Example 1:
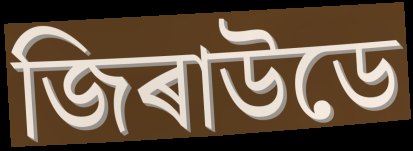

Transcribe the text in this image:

জিৰাউডে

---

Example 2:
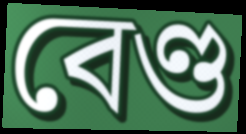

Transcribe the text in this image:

বেণ্ড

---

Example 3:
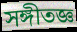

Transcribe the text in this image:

সঙ্গীতজ্ঞ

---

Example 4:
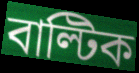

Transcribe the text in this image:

বাল্টিক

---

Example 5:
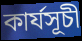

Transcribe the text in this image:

কাৰ্যসূচী